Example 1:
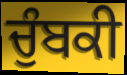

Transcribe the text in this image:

ਚੁੰਬਕੀ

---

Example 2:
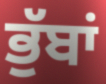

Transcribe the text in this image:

ਭੁੱਬਾਂ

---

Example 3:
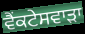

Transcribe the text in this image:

ਵੈਂਕਟੇਸਵਾੜਾ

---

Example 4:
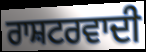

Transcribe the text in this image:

ਰਾਸ਼ਟਰਵਾਦੀ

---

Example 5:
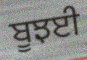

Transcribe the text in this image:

ਬੂਝਈ